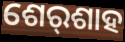
ଶେର୍‌ଶାହ